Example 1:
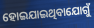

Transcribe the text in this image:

ହୋଇଯାଇଥିବାଯୋଗୁଁ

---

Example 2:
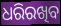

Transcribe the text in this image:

ଧରିରଖିବ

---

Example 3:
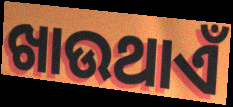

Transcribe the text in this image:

ଖାଉଥାଏଁ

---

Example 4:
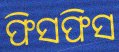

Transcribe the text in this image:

ଫିସଫିସ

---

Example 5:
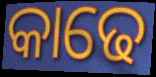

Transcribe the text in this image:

କାଢେ